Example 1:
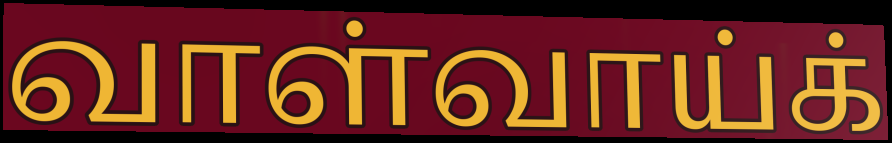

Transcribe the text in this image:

வாள்வாய்க்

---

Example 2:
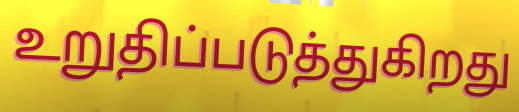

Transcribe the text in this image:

உறுதிப்படுத்துகிறது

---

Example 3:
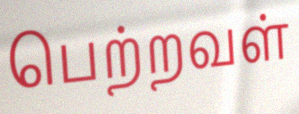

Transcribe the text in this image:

பெற்றவள்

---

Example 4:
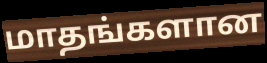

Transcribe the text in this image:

மாதங்களான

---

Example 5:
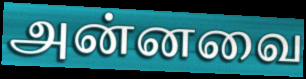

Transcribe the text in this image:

அன்னவை